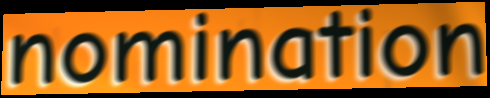
nomination